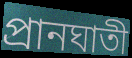
প্রানঘাতী